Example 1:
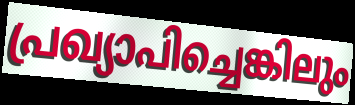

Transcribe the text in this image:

പ്രഖ്യാപിച്ചെങ്കിലും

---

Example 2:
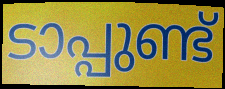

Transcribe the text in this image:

ടാപ്പുണ്ട്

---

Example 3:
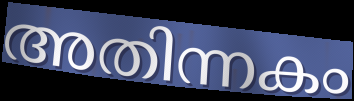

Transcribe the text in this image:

അതിന്നകം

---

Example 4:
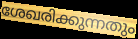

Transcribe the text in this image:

ശേഖരിക്കുന്നതും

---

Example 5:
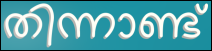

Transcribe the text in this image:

തിന്നാണ്ട്